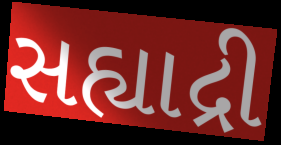
સહ્યાદ્રી